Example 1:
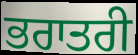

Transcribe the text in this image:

ਭਰਾਤਰੀ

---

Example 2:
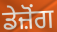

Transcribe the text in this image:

ਡੇਜ਼ੋਂਗ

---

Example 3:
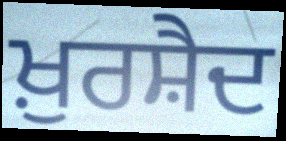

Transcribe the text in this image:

ਖ਼ੁਰਸ਼ੈਦ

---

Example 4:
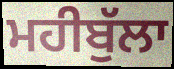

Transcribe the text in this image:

ਮਹੀਬੁੱਲਾ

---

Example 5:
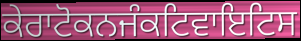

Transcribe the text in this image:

ਕੇਰਾਟੋਕਨਜੰਕਟਿਵਾਇਟਿਸ